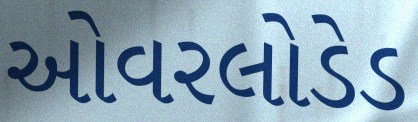
ઓવરલોડેડ